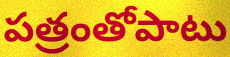
పత్రంతోపాటు